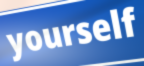
yourself